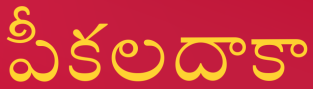
పీకలదాకా